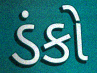
ડંકો